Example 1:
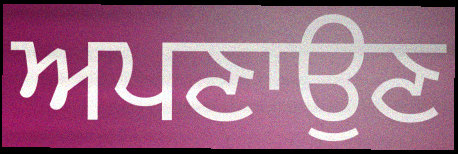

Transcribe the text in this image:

ਅਪਣਾਉਣ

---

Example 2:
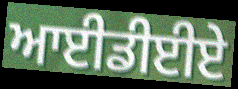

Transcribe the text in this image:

ਆਈਡੀਈਏ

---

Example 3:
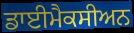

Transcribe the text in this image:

ਡਾਈਮੈਕਸੀਅਨ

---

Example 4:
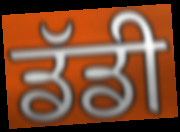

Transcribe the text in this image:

ਡੱਡੀ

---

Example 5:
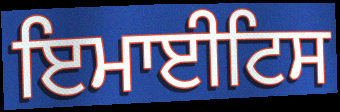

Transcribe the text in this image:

ਇਮਾਈਟਿਸ